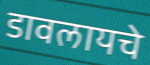
डावलायचे